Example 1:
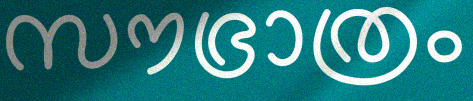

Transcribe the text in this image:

സൗഭ്രാത്രം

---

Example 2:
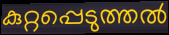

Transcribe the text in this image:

കുറ്റപ്പെടുത്തൽ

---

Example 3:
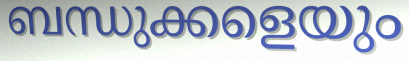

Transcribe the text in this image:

ബന്ധുക്കളെയും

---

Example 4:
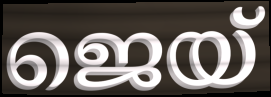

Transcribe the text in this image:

ജെയ്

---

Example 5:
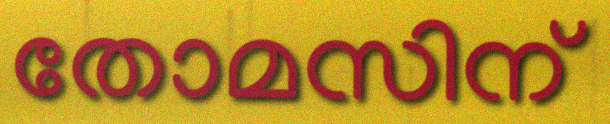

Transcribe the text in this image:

തോമസിന്